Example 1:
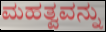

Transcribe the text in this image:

ಮಹತ್ವವನ್ನು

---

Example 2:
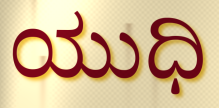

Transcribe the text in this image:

ಯುಧಿ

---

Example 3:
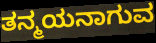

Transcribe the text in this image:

ತನ್ಮಯನಾಗುವ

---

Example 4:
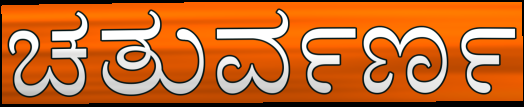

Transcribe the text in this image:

ಚತುರ್ವರ್ಣ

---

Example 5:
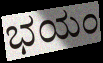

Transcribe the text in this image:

ಭಯಂ